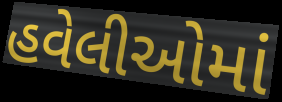
હવેલીઓમાં